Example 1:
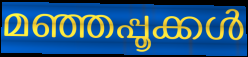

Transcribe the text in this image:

മഞ്ഞപ്പൂക്കൾ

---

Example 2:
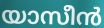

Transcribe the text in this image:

യാസീൻ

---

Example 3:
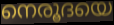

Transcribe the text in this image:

നെരൂദയെ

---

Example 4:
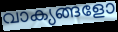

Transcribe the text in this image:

വാക്യങ്ങളോ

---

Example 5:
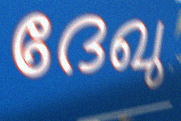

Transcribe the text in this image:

ദേഖു